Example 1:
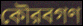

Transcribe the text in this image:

কৌরবগণ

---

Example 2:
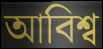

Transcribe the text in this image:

আবিশ্ব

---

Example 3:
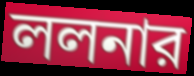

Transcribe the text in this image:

ললনার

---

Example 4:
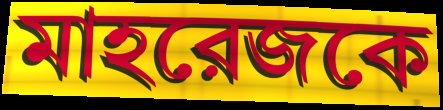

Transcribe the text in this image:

মাহরেজকে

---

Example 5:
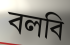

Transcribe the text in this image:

বলবি